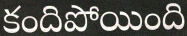
కందిపోయింది